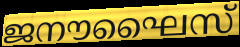
ജനൗഘൈസ്